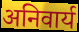
अनिवार्य